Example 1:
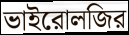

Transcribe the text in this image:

ভাইরোলজির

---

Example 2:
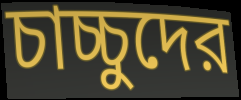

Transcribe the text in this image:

চাচ্চুদের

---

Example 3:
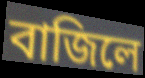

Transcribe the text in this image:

বাজিলে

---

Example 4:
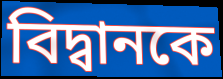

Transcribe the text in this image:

বিদ্বানকে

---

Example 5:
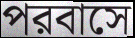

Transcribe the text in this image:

পরবাসে